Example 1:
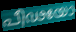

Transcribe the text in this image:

പീഢയോ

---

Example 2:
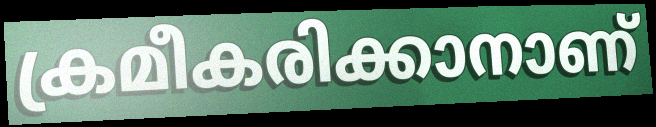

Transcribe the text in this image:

ക്രമീകരിക്കാനാണ്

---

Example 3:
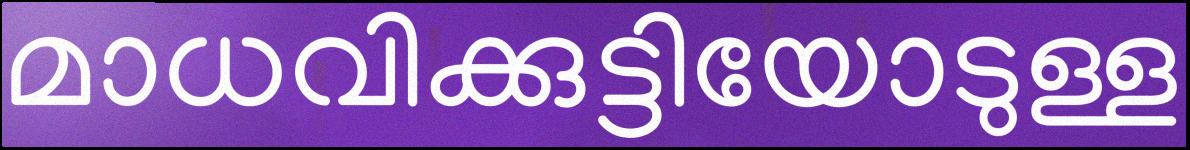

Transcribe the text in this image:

മാധവിക്കുട്ടിയോടുള്ള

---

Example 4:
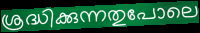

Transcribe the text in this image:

ശ്രദ്ധിക്കുന്നതുപോലെ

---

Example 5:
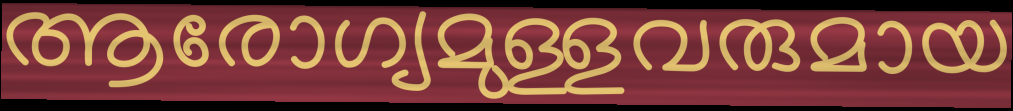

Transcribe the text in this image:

ആരോഗ്യമുള്ളവരുമായ